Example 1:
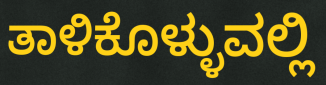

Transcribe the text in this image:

ತಾಳಿಕೊಳ್ಳುವಲ್ಲಿ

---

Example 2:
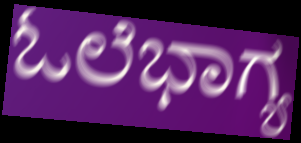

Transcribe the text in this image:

ಓಲೆಭಾಗ್ಯ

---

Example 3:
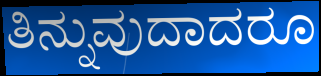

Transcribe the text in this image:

ತಿನ್ನುವುದಾದರೂ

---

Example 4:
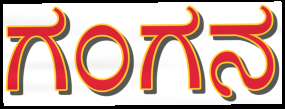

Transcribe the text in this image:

ಗಂಗನ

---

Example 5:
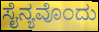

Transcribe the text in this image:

ಸೈನ್ಯವೊಂದು